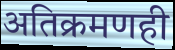
अतिक्रमणही